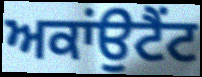
ਅਕਾਂਉਟੈਂਟ